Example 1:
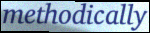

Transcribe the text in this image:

methodically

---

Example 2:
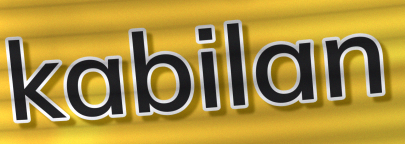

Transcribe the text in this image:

kabilan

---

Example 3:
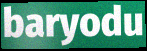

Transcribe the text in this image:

baryodu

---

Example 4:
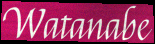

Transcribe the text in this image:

Watanabe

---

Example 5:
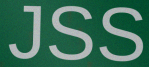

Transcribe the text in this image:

JSS